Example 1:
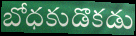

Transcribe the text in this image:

బోధకుడొకడు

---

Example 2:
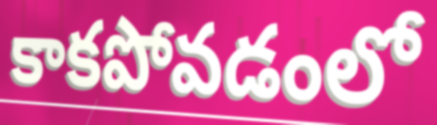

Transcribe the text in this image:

కాకపోవడంలో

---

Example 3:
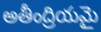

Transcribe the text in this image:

అతీంద్రియమై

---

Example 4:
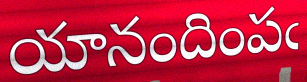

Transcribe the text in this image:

యానందింపఁ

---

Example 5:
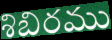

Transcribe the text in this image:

శిబిరము